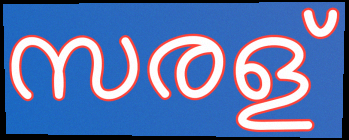
സരള്